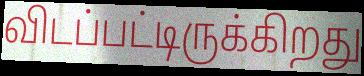
விடப்பட்டிருக்கிறது